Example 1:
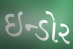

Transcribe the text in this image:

ઇન્ડોર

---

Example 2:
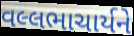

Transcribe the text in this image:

વલ્લભાચાર્યને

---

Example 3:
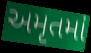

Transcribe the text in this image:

અમૃતમાં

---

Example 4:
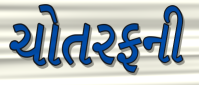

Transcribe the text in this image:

ચોતરફની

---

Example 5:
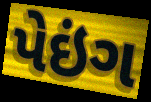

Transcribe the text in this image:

પેઇંગ